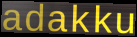
adakku